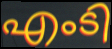
എംടി